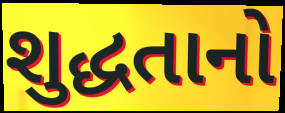
શુદ્ધતાનો